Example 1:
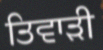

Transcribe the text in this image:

ਤਿਵਾੜੀ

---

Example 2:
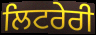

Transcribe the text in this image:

ਲਿਟਰੇਰੀ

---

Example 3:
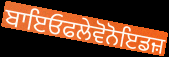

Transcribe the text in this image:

ਬਾਇਓਫਲੇਵੋਨੋਇਡਜ਼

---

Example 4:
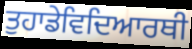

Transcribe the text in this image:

ਤੁਹਾਡੇਵਿਦਿਆਰਥੀ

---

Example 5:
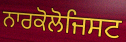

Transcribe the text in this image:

ਨਾਰਕੋਲੋਜਿਸਟ